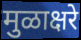
मुळाक्षरे